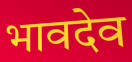
भावदेव